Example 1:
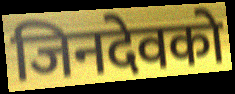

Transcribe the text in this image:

जिनदेवको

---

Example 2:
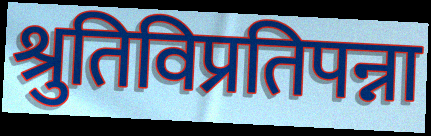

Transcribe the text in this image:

श्रुतिविप्रतिपन्ना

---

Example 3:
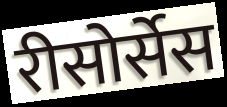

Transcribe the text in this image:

रीसोर्सेस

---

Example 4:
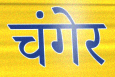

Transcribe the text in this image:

चंगेर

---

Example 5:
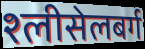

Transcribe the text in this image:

श्लीसेलबर्ग